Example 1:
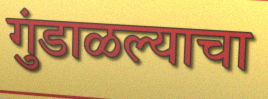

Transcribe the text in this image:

गुंडाळल्याचा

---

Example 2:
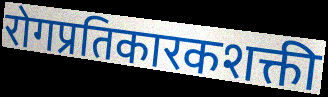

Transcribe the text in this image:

रोगप्रतिकारकशक्ती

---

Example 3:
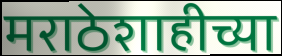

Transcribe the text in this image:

मराठेशाहीच्या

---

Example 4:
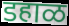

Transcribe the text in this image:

डहाळ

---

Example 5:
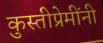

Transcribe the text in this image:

कुस्तीप्रेमींनी